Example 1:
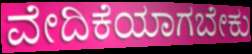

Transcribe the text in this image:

ವೇದಿಕೆಯಾಗಬೇಕು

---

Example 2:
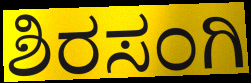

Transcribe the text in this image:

ಶಿರಸಂಗಿ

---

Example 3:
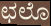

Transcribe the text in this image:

ಛಲೊ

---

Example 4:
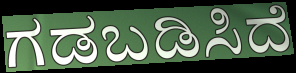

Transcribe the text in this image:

ಗಡಬಡಿಸಿದೆ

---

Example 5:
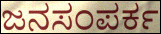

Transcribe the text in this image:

ಜನಸಂಪರ್ಕ